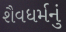
શૈવધર્મનું